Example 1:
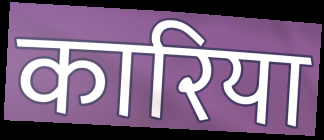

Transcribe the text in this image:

कारिया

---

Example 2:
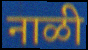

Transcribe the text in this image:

नाळी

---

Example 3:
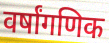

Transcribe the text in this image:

वर्षांगणिक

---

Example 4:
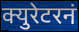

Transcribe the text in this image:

क्युरेटरनं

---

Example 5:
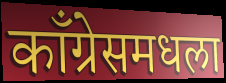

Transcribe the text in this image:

काँग्रेसमधला